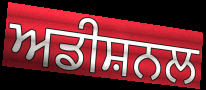
ਅਡੀਸ਼ਨਲ